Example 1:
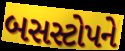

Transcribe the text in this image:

બસસ્ટોપને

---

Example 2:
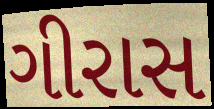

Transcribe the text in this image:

ગીરાસ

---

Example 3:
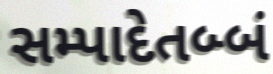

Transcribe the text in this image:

સમ્પાદેતબ્બં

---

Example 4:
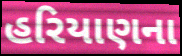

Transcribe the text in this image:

હરિયાણના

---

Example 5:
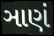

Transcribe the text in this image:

ઞાણં